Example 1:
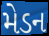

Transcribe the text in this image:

મેડન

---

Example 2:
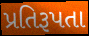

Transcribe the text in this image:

પ્રતિરૂપતા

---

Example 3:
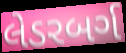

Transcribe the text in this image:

લેડરબર્ગ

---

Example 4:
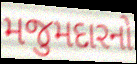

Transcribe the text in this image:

મજુમદારનો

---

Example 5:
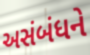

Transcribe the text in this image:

અસંબંધને